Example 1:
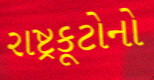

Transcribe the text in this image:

રાષ્ટ્રકૂટોનો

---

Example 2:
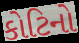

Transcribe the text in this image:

કોટિનો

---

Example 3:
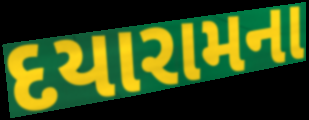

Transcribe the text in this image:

દયારામના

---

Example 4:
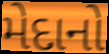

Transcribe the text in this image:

મેદાનો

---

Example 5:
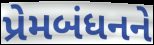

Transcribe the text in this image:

પ્રેમબંધનને